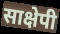
साक्षेपी